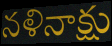
నళినాక్షు